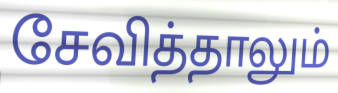
சேவித்தாலும்